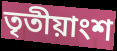
তৃতীয়াংশ